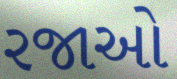
રજાઓ